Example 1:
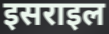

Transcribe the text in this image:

इसराइल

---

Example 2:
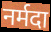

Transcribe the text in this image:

नर्मदा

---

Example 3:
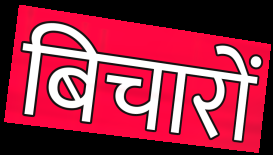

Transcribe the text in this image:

बिचारों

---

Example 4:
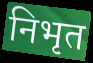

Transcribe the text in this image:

निभृत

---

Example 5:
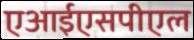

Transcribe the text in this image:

एआईएसपीएल